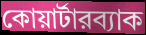
কোয়ার্টারব্যাক